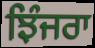
ਝਿੰਜਰਾ